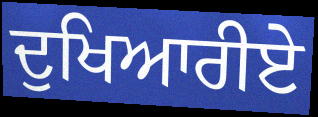
ਦੁਖਿਆਰੀਏ